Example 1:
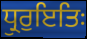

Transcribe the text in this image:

ਧ੍ਰੁਰੁਇਤਿਃ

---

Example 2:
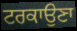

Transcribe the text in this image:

ਟਰਕਾਉਣਾ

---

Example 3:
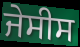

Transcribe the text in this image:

ਜੇਸੀਸ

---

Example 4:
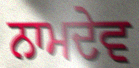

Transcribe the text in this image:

ਨਾਮਦੇਵ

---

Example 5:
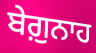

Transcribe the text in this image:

ਬੇਗ਼ੁਨਾਹ